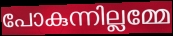
പോകുന്നില്ലമ്മേ